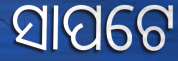
ସାପଟେ